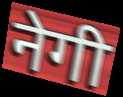
नेगी